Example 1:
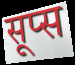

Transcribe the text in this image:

सूप्स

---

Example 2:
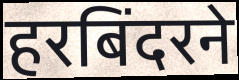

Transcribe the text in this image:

हरबिंदरने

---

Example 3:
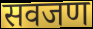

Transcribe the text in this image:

सवजण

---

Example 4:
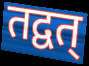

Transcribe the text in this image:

तद्वत्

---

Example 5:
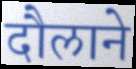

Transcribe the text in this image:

दौलाने